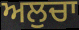
ਅਲੁਚਾ